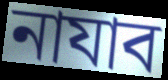
নাযাব